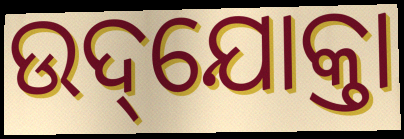
ଉଦ୍‌ଯୋକ୍ତା